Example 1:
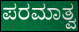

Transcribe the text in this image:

ಪರಮಾತ್ವ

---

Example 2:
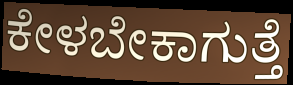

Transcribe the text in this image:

ಕೇಳಬೇಕಾಗುತ್ತೆ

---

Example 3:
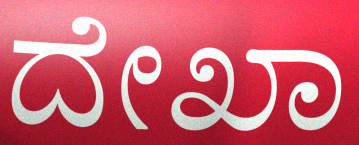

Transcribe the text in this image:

ದೇಖಾ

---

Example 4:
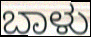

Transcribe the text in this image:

ಬಾಳು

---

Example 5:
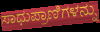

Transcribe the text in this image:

ಸಾಧುಪ್ರಾಣಿಗಳನ್ನು